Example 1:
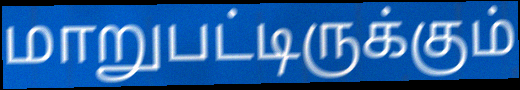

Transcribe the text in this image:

மாறுபட்டிருக்கும்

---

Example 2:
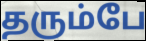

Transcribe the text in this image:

தரும்பே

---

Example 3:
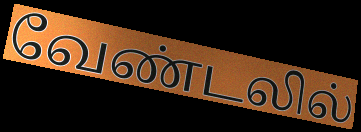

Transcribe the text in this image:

வேண்டலில்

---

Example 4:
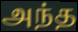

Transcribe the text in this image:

அந்த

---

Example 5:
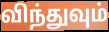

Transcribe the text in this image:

விந்துவும்